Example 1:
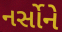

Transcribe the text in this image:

નર્સોને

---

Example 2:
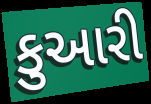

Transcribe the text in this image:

કુઆરી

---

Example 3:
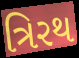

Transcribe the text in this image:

ત્રિરથ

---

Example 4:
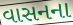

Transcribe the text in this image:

વાસનના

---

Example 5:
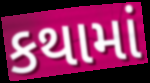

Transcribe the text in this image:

કથામાં